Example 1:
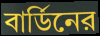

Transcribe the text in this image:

বার্ডিনের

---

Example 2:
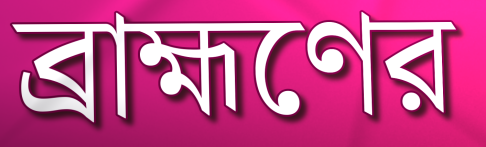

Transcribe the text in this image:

ব্রাহ্মণের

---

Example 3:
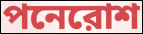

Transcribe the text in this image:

পনেরোশ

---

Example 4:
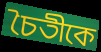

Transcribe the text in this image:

চৈতীকে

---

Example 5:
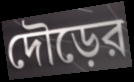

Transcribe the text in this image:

দৌড়ের